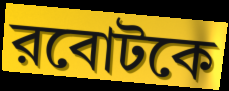
রবোটকে